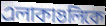
এলাকাগুলিকে